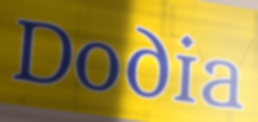
Dodia